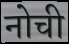
नोची